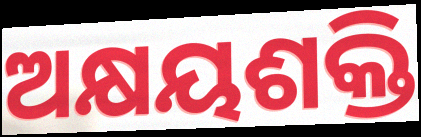
ଅକ୍ଷୟଶକ୍ତି